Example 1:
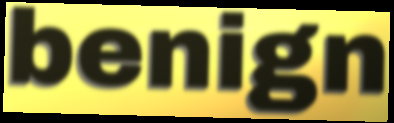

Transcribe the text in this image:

benign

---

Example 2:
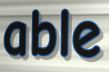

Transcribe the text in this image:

able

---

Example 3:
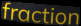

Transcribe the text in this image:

fraction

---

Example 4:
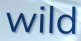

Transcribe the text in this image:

wild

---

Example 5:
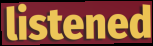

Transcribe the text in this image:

listened